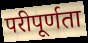
परीपूर्णता